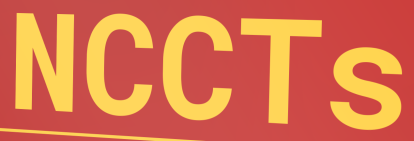
NCCTs